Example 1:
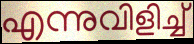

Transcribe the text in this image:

എന്നുവിളിച്ച്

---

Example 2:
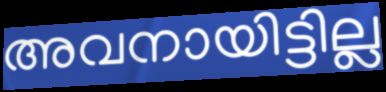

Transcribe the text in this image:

അവനായിട്ടില്ല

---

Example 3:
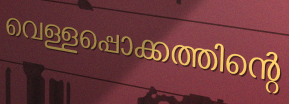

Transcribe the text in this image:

വെള്ളപ്പൊക്കത്തിന്റെ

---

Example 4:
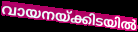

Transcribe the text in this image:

വായനയ്ക്കിടയിൽ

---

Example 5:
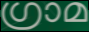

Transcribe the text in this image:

ഗ്രാമ